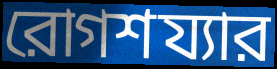
রোগশয্যার